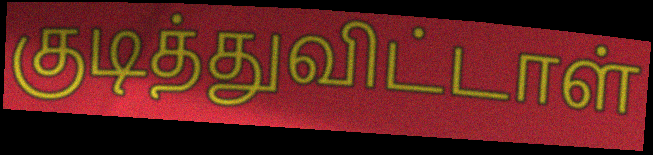
குடித்துவிட்டாள்